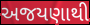
અજયણાથી